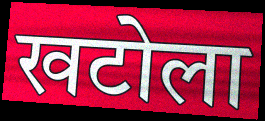
खटोला